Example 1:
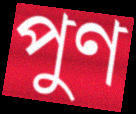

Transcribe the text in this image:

পুণ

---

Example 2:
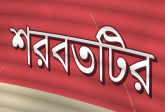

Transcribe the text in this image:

শরবতটির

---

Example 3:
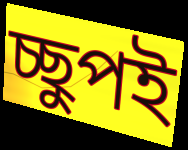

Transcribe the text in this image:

চ্ছুপই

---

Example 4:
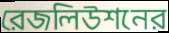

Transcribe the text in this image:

রেজলিউশনের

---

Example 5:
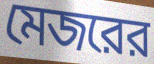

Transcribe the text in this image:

মেজরের